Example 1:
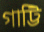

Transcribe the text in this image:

গাট্টি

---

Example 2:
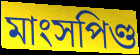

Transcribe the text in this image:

মাংসপিণ্ড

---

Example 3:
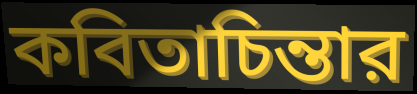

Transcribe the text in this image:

কবিতাচিন্তার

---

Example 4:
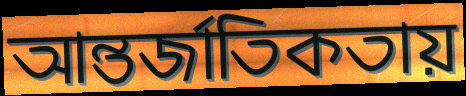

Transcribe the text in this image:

আন্তর্জাতিকতায়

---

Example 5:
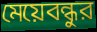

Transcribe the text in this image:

মেয়েবন্ধুর